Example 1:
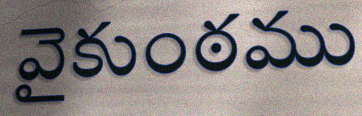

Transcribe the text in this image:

వైకుంఠము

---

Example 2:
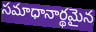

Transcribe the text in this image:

సమాధానార్థమైన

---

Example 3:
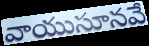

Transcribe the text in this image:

వాయుసూనవే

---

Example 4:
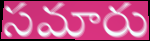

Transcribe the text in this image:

సమారు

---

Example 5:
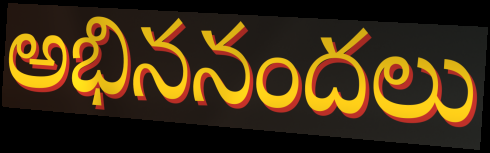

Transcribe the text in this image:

అభిననందలు